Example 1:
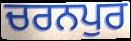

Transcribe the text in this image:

ਚਰਨਪੁਰ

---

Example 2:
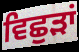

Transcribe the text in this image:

ਵਿਛੁੜਾਂ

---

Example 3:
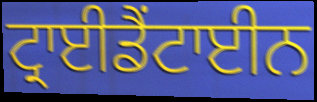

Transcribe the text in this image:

ਟ੍ਰਾਈਡੈਂਟਾਈਨ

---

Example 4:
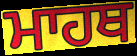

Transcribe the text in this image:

ਮਾਹਥ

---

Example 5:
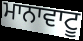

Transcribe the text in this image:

ਮਾਨਾਵਾਟੂ